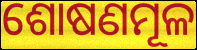
ଶୋଷଣମୂଳ